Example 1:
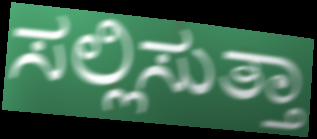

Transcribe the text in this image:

ಸಲ್ಲಿಸುತ್ತಾ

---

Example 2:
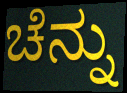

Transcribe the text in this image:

ಚೆನ್ನು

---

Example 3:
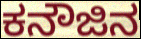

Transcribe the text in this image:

ಕನೌಜಿನ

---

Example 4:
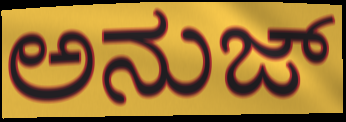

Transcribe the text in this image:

ಅನುಜ್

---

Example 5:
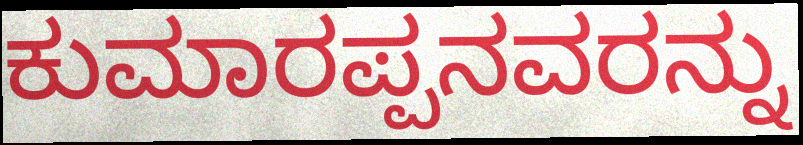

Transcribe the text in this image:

ಕುಮಾರಪ್ಪನವರನ್ನು